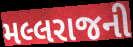
મલ્લરાજની